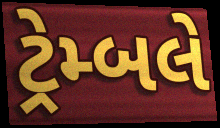
ટ્રેમ્બલે